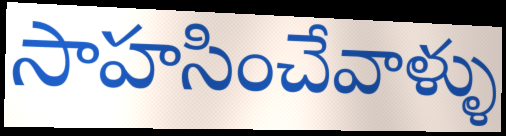
సాహసించేవాళ్ళు